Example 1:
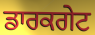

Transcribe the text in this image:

ਡਾਰਕਗੇਟ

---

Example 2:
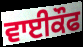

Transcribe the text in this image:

ਵਾਈਕੌਫ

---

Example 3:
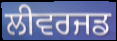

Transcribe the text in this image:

ਲੀਵਰਜਡ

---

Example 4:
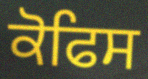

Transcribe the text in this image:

ਕੋਫਿਸ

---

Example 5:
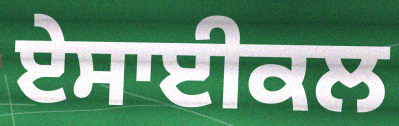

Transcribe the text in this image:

ਏਸਾਈਕਲ